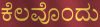
ಕೆಲವೊಂದು